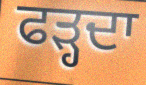
ਫੜ੍ਹਦਾ